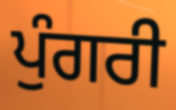
ਪੁੰਗਰੀ